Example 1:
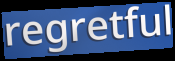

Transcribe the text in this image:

regretful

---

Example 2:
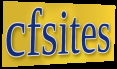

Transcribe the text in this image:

cfsites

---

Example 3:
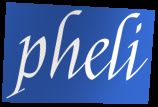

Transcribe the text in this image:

pheli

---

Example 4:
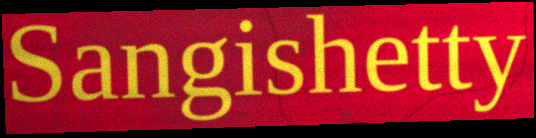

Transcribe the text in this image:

Sangishetty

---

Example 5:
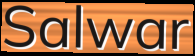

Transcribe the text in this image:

Salwar